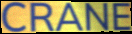
CRANE